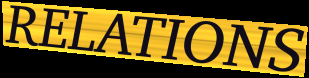
RELATIONS